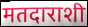
मतदाराशी